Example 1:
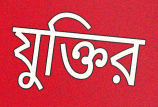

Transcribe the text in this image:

যুক্তির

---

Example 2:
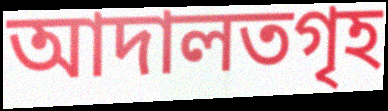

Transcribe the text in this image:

আদালতগৃহ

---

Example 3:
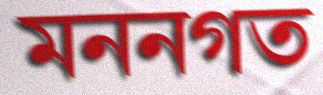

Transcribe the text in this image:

মননগত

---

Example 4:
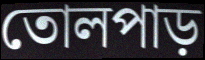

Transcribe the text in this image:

তোলপাড়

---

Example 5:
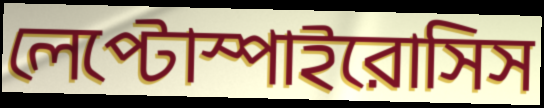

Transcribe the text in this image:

লেপ্টোস্পাইরোসিস